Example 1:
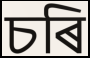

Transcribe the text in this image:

চৰি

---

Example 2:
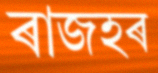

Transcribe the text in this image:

ৰাজহৰ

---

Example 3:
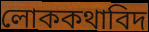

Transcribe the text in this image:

লোককথাবিদ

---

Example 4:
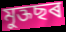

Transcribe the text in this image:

মুক্তছৰ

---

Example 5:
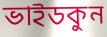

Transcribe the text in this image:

ভাইডকুন